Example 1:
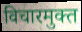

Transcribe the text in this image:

विचारमुक्त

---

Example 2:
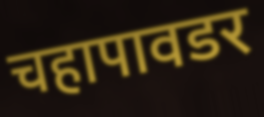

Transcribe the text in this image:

चहापावडर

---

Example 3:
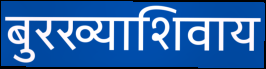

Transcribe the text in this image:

बुरख्याशिवाय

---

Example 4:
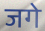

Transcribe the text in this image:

जगे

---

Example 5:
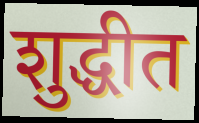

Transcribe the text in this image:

शुद्धीत